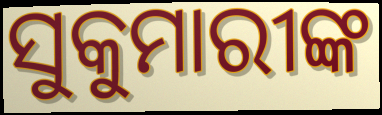
ସୁକୁମାରୀଙ୍କ